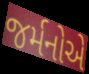
જર્મનોએ